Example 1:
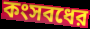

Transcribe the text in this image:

কংসবধের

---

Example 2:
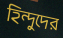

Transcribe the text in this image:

হিন্দুদের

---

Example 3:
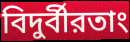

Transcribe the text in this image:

বিদুর্বীরতাং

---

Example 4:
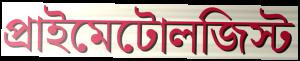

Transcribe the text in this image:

প্রাইমেটোলজিস্ট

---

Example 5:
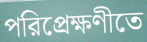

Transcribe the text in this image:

পরিপ্রেক্ষণীতে